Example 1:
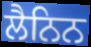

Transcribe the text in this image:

ਲੈਨਿਨ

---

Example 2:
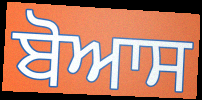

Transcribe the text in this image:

ਬੋਆਸ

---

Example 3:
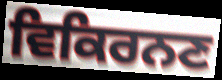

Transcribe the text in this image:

ਵਿਕਿਰਨਣ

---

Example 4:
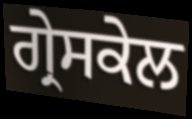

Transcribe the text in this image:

ਗ੍ਰੇਸਕੇਲ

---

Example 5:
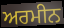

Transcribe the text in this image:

ਅਰਮੀਨ